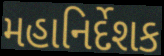
મહાનિર્દેશક